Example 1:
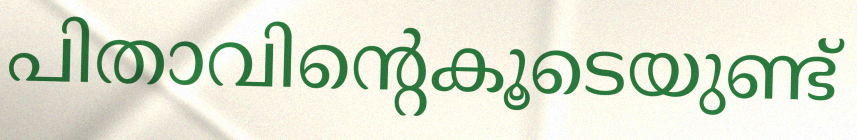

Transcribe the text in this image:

പിതാവിന്റെകൂടെയുണ്ട്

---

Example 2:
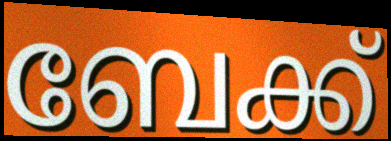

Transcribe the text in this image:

ബേക്ക്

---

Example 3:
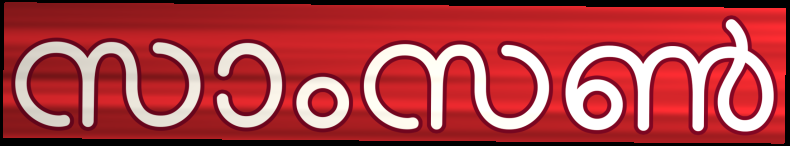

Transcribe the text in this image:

സാംസൺ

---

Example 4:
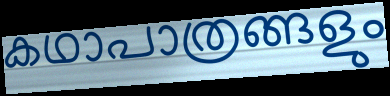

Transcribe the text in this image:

കഥാപാത്രങ്ങളും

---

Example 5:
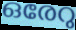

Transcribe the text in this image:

ഒരേറു